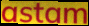
astam